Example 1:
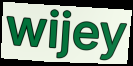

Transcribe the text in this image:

wijey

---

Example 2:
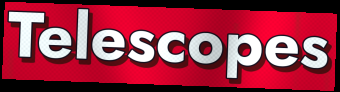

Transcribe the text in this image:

Telescopes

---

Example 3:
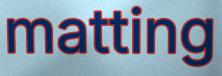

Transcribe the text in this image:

matting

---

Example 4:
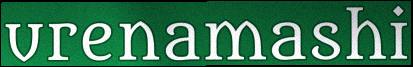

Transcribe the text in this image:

urenamashi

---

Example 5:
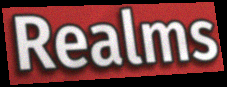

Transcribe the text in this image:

Realms